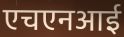
एचएनआई